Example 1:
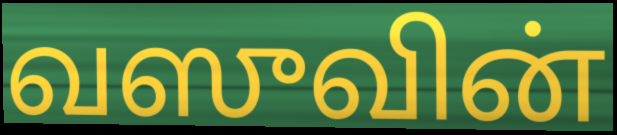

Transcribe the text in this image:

வஸுவின்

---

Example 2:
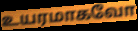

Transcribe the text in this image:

உயரமாகவோ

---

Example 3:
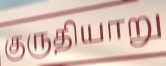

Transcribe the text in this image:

குருதியாறு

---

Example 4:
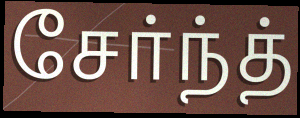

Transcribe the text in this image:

சேர்ந்த்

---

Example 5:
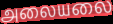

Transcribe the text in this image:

அலையலை